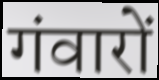
गंवारों